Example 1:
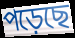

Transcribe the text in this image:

পড়েছে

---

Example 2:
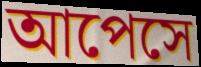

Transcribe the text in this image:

আপেসে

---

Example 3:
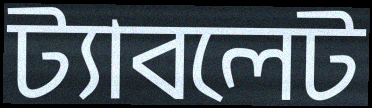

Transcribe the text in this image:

ট্যাবলেট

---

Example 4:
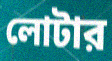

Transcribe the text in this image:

লোটার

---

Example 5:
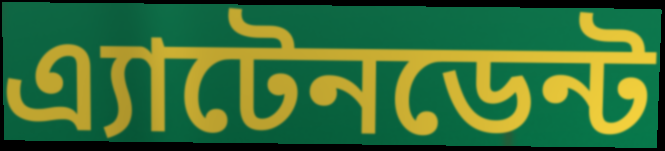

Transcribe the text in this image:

এ্যাটেনডেন্ট